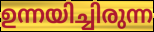
ഉന്നയിച്ചിരുന്ന